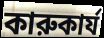
কারুকার্য